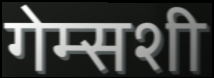
गेम्सशी